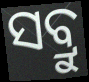
ସବ୍ରୁ